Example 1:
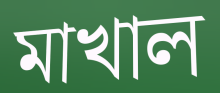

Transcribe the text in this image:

মাখাল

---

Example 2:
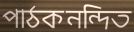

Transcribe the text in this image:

পাঠকনন্দিত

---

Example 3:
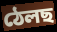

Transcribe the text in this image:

ঠেলছ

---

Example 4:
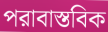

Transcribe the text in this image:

পরাবাস্তবিক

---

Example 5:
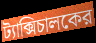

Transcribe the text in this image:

ট্যাক্সিচালকের